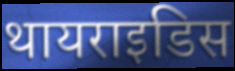
थायराइडिस